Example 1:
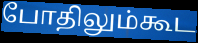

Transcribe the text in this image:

போதிலும்கூட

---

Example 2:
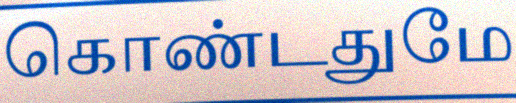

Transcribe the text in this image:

கொண்டதுமே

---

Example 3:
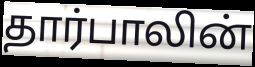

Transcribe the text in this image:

தார்பாலின்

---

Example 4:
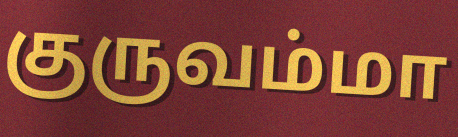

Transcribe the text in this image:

குருவம்மா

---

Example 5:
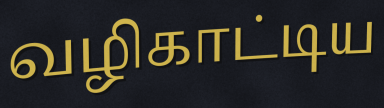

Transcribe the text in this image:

வழிகாட்டிய